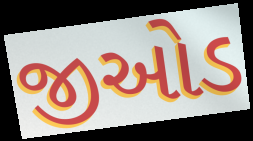
જીઓડ